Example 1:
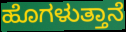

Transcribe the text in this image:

ಹೊಗಳುತ್ತಾನೆ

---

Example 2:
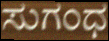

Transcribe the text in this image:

ಸುಗಂಧ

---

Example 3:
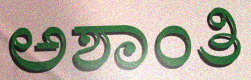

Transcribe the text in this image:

ಅಶಾಂತಿ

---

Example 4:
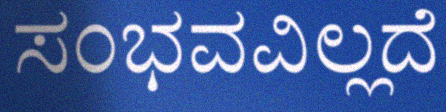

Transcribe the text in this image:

ಸಂಭವವಿಲ್ಲದೆ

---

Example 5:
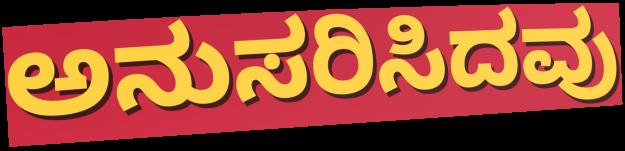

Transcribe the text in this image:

ಅನುಸರಿಸಿದವು